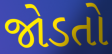
જોડતો